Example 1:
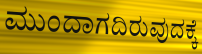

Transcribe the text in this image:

ಮುಂದಾಗದಿರುವುದಕ್ಕೆ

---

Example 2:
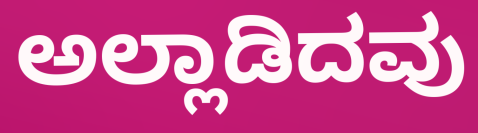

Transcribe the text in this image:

ಅಲ್ಲಾಡಿದವು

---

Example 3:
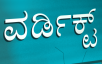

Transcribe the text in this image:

ವರ್ಡಿಕ್ಟ್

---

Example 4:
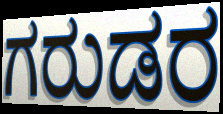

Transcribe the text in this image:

ಗರುಡರ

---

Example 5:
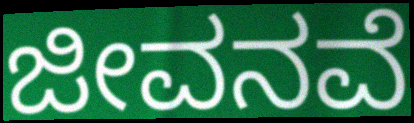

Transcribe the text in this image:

ಜೀವನವೆ